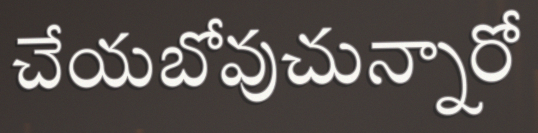
చేయబోవుచున్నారో